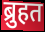
ब्रुहत